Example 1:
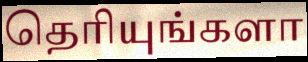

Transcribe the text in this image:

தெரியுங்களா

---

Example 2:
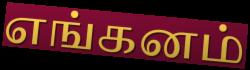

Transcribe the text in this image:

எங்கனம்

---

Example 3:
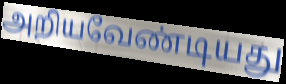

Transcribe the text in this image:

அறியவேண்டியது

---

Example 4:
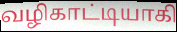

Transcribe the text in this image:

வழிகாட்டியாகி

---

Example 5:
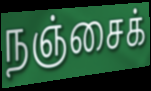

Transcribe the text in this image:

நஞ்சைக்